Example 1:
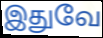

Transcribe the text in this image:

இதுவே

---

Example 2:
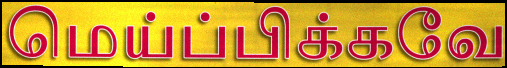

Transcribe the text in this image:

மெய்ப்பிக்கவே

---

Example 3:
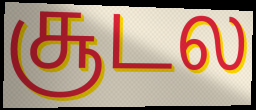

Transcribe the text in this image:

சூடல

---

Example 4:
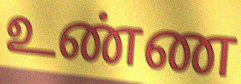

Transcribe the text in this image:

உண்ண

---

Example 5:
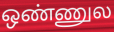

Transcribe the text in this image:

ஒண்ணுல